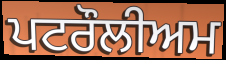
ਪਟਰੌਲੀਅਮ